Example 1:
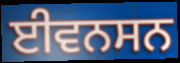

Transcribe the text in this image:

ਈਵਨਸਨ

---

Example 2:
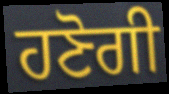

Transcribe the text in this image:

ਹਣੋਗੀ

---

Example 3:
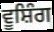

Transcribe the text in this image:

ਵੂਸ਼ਿੰਗ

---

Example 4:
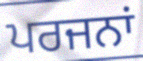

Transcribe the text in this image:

ਪਰਜਨਾਂ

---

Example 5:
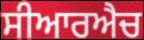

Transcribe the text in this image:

ਸੀਆਰਐਚ